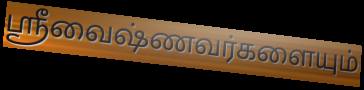
ஸ்ரீவைஷ்ணவர்களையும்